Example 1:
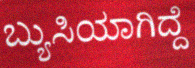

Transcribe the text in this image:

ಬ್ಯುಸಿಯಾಗಿದ್ದೆ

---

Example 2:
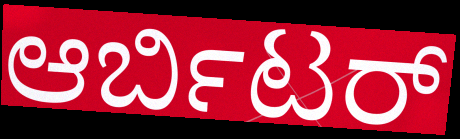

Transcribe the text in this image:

ಆರ್ಬಿಟರ್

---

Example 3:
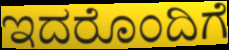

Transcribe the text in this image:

ಇದರೊಂದಿಗೆ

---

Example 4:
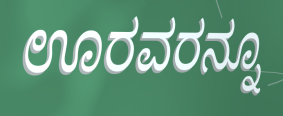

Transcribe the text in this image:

ಊರವರನ್ನೂ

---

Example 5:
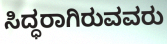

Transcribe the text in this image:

ಸಿದ್ಧರಾಗಿರುವವರು